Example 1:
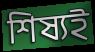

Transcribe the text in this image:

শিষ্যই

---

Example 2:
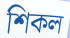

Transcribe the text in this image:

শিকল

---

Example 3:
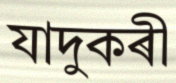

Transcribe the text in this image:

যাদুকৰী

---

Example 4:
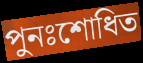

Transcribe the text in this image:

পুনঃশোধিত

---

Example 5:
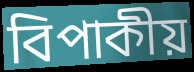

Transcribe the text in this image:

বিপাকীয়